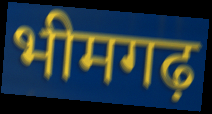
भीमगढ़